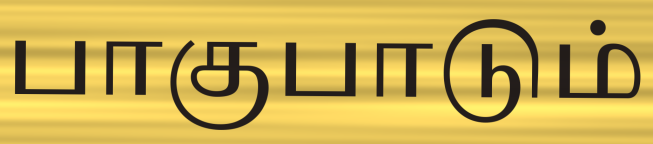
பாகுபாடும்